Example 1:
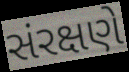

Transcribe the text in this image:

સંરક્ષણે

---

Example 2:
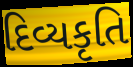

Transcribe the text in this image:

દિવ્યકૃતિ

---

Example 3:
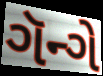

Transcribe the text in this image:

ગૅન્ગે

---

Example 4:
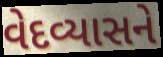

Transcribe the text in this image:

વેદવ્યાસને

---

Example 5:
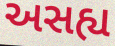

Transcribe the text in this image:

અસહ્ય